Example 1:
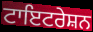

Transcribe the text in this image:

ਟਾਇਟਰੇਸ਼ਨ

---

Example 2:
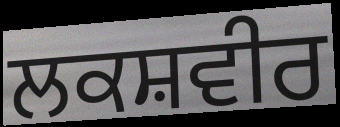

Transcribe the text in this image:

ਲਕਸ਼ਵੀਰ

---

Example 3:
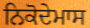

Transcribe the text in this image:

ਨਿਕੋਦੇਮਾਸ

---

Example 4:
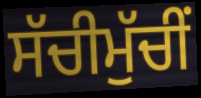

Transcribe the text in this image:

ਸੱਚੀਮੁੱਚੀਂ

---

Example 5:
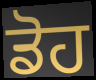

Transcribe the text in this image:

ਡੋਹ